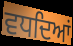
ਵਧਦਿਆਂ